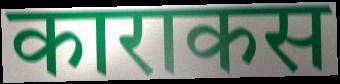
काराकस